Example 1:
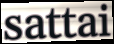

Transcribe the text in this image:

sattai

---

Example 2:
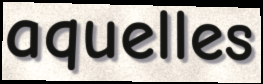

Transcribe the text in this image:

aquelles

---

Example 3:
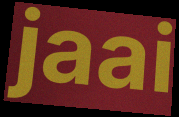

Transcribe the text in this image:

jaai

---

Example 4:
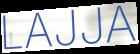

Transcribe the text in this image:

LAJJA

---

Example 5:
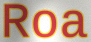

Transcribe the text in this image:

Roa